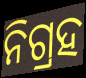
ନିଗ୍ରହ